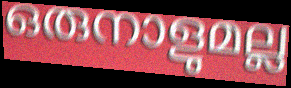
ഒരുനാളുമല്ല